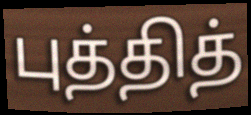
புத்தித்